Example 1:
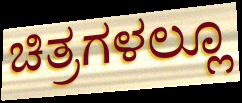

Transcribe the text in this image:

ಚಿತ್ರಗಳಲ್ಲೂ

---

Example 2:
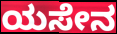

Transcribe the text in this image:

ಯಸೇನ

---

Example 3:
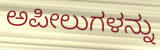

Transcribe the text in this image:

ಅಪೀಲುಗಳನ್ನು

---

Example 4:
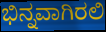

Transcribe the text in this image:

ಭಿನ್ನವಾಗಿರಲಿ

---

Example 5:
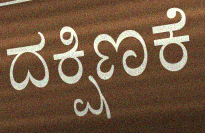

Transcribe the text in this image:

ದಕ್ಷಿಣಕೆ